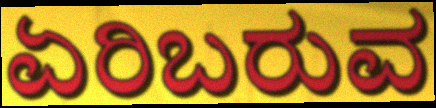
ಏರಿಬರುವ